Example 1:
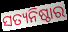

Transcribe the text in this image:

ସତ୍ୟନିଷ୍ଠାର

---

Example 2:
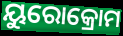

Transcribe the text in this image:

ୟୁରୋକ୍ରୋମ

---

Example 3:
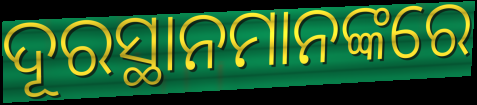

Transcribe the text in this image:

ଦୂରସ୍ଥାନମାନଙ୍କରେ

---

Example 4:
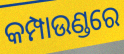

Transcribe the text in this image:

କମ୍ପାଉଣ୍ଡରେ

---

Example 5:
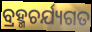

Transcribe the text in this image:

ବ୍ରହ୍ମଚର୍ଯ୍ୟଗତ